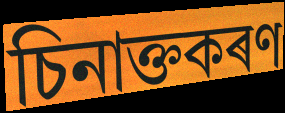
চিনাক্তকৰণ